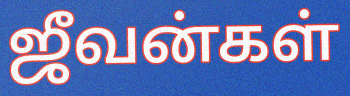
ஜீவன்கள்